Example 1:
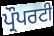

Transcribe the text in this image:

ਪ੍ਰੌਪਰਟੀ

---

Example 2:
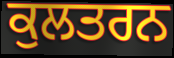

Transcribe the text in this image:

ਕੁਲਤਰਨ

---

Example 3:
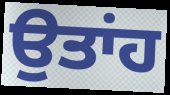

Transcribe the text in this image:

ਉਤਾਂਹ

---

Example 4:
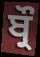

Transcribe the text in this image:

ਬ੍ਰੌ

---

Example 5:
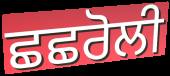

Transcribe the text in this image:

ਛਛਰੋਲੀ